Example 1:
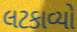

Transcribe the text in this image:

લટકાવ્યો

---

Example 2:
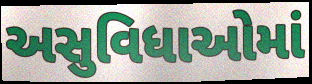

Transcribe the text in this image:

અસુવિધાઓમાં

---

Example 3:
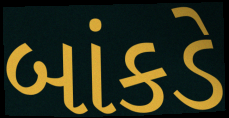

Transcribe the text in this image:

બાંકડે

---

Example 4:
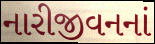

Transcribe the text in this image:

નારીજીવનનાં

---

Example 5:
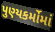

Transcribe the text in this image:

પુણ્યકર્મોમાં